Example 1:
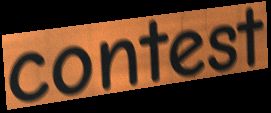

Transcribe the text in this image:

contest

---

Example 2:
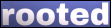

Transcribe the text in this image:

rooted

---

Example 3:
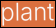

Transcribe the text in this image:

plant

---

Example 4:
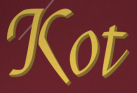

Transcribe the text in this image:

Kot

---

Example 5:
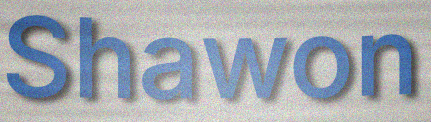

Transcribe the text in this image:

Shawon